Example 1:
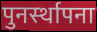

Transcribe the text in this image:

पुनर्स्थापना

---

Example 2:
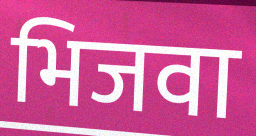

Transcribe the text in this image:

भिजवा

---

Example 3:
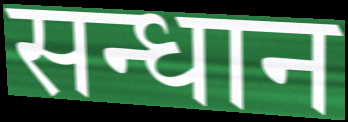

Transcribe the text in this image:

सन्धान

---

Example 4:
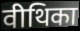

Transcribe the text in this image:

वीथिका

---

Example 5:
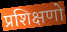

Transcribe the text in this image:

प्रशिक्षणो